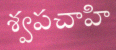
శ్వపచాహి